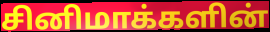
சினிமாக்களின்